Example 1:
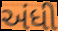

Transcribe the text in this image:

અંધી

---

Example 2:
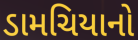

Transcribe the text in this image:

ડામચિયાનો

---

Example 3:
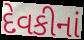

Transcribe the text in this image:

દેવકીનાં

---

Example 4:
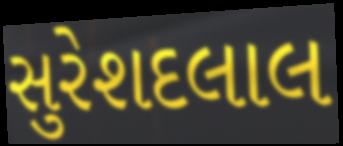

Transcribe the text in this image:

સુરેશદલાલ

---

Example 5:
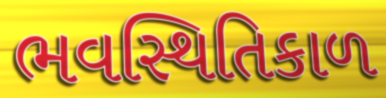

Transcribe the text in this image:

ભવસ્થિતિકાળ